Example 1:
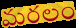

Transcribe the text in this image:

మరలం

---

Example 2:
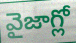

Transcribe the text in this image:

వైజాగ్లో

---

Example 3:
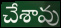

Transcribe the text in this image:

చేశావు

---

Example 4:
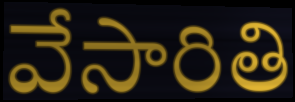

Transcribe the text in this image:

వేసారితి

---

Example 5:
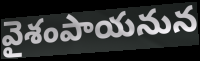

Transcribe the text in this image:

వైశంపాయనున